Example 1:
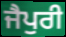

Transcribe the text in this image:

ਜੈਪੁਰੀ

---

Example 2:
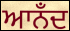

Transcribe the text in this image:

ਆਨਁਦ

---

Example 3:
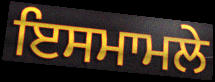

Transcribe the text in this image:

ਇਸਮਾਮਲੇ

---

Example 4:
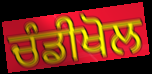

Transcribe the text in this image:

ਚੰਡੀਖੋਲ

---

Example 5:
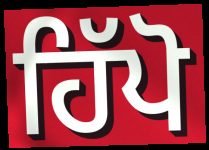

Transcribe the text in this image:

ਹਿੱਪੋ